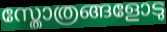
സ്തോത്രങ്ങളോടു